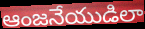
ఆంజనేయుడిలా